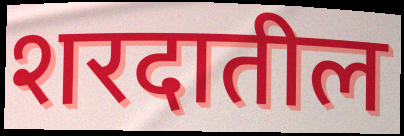
शरदातील